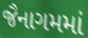
જૈનાગમમાં